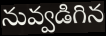
నువ్వడిగిన